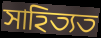
সাহিত্যত